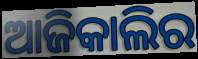
ଆଜିକାଲିର